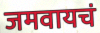
जमवायचं